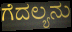
ಗೆದಲ್ಯನು